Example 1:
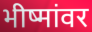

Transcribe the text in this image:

भीष्मांवर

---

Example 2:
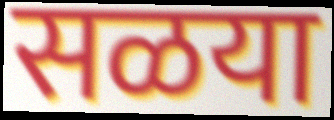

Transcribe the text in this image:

सळया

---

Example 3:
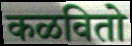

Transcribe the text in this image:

कळवितो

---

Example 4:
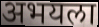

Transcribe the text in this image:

अभयला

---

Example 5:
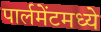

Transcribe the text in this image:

पार्लमेंटमध्ये